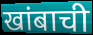
खांबाची